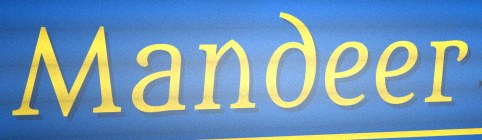
Mandeer